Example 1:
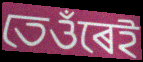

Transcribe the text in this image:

তেওঁৰেই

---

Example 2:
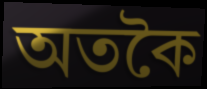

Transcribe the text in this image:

অতকৈ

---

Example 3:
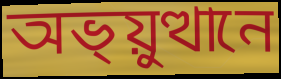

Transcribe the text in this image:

অভ্য়ুত্থানে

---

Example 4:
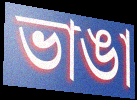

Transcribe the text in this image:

ভাঙা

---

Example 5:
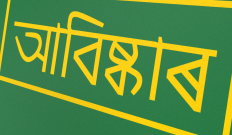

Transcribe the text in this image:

আবিষ্কাৰ